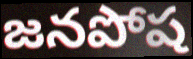
జనపోష